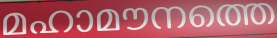
മഹാമൗനത്തെ